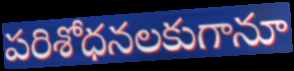
పరిశోధనలకుగానూ